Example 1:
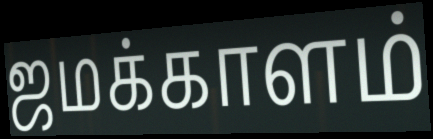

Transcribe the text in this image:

ஜமக்காளம்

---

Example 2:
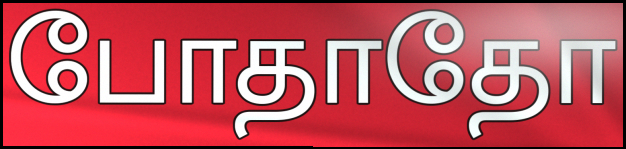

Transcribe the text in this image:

போதாதோ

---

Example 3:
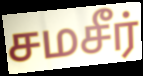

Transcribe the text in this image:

சமசீர்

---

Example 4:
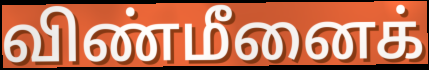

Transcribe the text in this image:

விண்மீனைக்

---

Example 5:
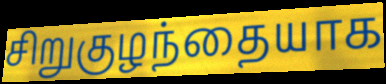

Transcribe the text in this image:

சிறுகுழந்தையாக